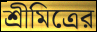
শ্রীমিত্রের